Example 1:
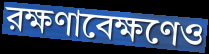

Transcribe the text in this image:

রক্ষণাবেক্ষণেও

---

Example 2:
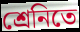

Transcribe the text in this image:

শ্রেনিতে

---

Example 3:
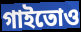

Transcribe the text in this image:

গাইতোও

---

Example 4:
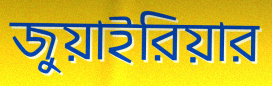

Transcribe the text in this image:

জুয়াইরিয়ার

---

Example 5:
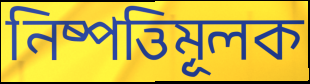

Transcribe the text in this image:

নিষ্পত্তিমূলক